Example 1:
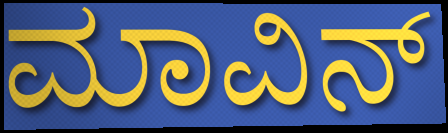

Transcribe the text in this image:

ಮಾವಿನ್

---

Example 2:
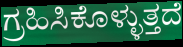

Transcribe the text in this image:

ಗ್ರಹಿಸಿಕೊಳ್ಳುತ್ತದೆ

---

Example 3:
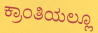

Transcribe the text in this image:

ಕ್ರಾಂತಿಯಲ್ಲೂ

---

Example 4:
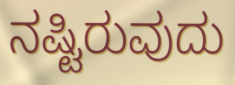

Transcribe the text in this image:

ನಷ್ಟಿರುವುದು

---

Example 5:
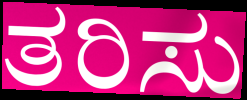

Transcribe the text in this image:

ತರಿಸು